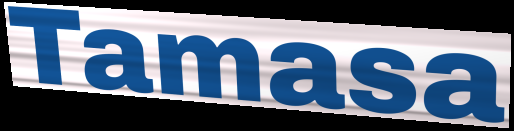
Tamasa